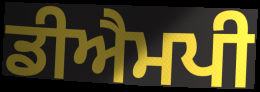
ਡੀਐਮਪੀ